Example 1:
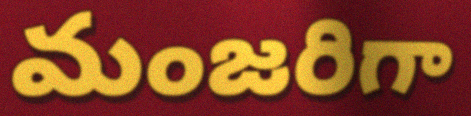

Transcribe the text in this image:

మంజరిగా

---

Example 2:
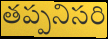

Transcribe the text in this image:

తప్పనిసరి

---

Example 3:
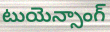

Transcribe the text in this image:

టుయెన్సాంగ్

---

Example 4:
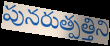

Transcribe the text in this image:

పునరుత్పత్తిని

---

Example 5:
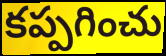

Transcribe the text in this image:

కప్పగించు